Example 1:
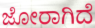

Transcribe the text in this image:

ಜೋರಾಗಿದೆ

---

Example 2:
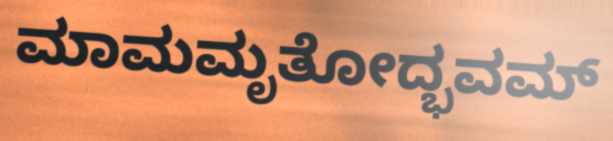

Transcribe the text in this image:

ಮಾಮಮೃತೋದ್ಭವಮ್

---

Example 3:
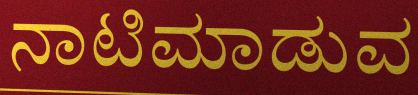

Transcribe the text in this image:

ನಾಟಿಮಾಡುವ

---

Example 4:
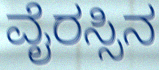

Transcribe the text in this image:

ವೈರಸ್ಸಿನ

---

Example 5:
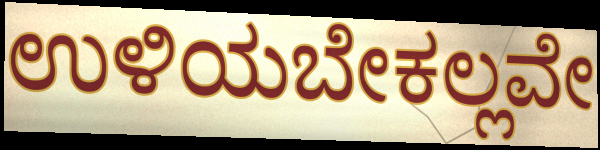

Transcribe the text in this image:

ಉಳಿಯಬೇಕಲ್ಲವೇ